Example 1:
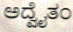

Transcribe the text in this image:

ಅದ್ವೈತಂ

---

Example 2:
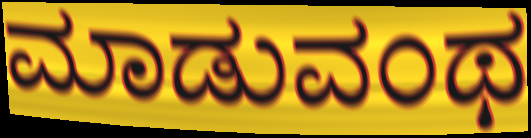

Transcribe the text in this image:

ಮಾಡುವಂಥ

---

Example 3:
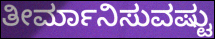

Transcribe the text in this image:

ತೀರ್ಮಾನಿಸುವಷ್ಟು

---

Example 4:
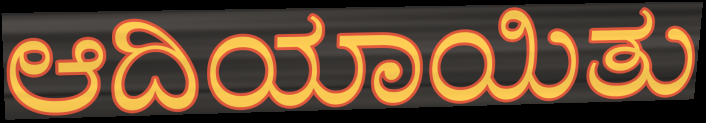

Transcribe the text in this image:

ಆದಿಯಾಯಿತು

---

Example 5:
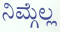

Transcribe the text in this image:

ನಿಮ್ಗೆಲ್ಲ